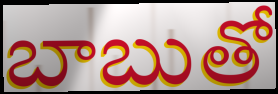
బాబుతో